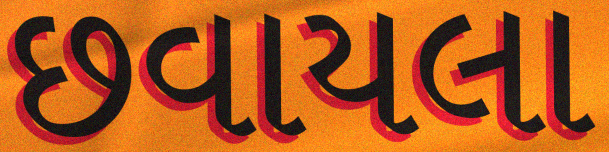
છવાયલા